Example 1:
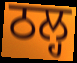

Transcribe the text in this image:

ਠਲ੍ਹ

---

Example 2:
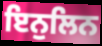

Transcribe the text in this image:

ਇਨੁਲਿਨ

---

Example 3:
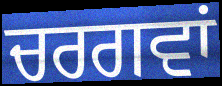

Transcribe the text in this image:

ਚਰਗਵਾਂ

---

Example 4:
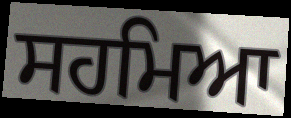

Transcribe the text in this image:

ਸਹਮਿਆ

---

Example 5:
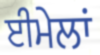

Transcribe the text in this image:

ਈਮੇਲਾਂ